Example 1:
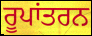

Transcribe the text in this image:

ਰੂਪਾਂਤਰਨ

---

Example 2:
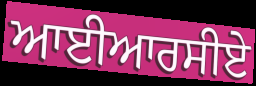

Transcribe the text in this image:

ਆਈਆਰਸੀਏ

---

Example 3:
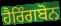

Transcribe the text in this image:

ਹੈਰਿੰਗਬੋਨ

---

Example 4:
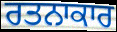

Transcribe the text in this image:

ਰਤਨਾਕਾਰ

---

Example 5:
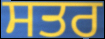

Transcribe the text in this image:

ਸਤਰ